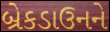
બ્રેકડાઉનને